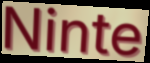
Ninte